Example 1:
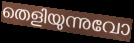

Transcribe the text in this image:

തെളിയുന്നുവോ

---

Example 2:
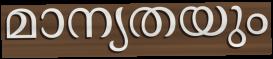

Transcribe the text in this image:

മാന്യതയും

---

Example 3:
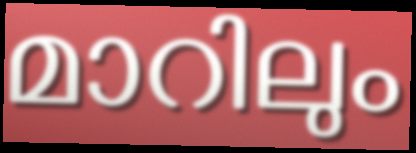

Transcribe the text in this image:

മാറിലും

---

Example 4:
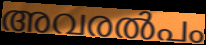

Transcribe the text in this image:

അവരൽപം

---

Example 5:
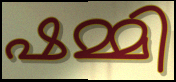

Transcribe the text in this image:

ഷമ്മി